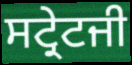
ਸਟ੍ਰੇਟਜੀ